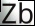
Zb